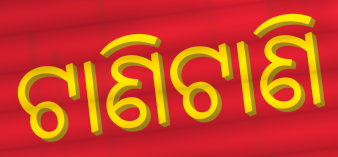
ଟାଣିଟାଣି